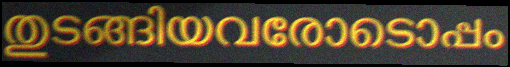
തുടങ്ങിയവരോടൊപ്പം